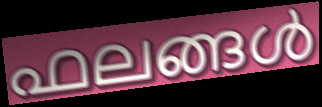
ഫലങ്ങൾ